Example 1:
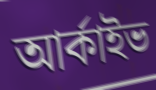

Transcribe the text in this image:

আর্কাইভ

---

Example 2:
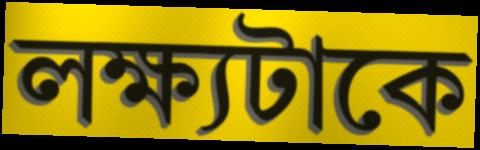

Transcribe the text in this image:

লক্ষ্যটাকে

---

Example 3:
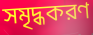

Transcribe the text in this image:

সমৃদ্ধকরণ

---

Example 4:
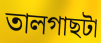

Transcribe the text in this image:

তালগাছটা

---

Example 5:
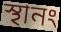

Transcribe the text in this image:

স্থানং